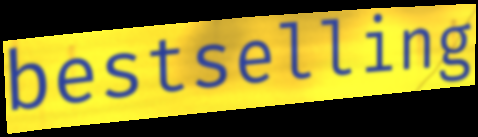
bestselling